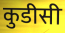
कुडीसी